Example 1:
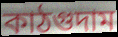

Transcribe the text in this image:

কাঠগুদাম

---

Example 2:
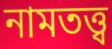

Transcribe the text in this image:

নামতত্ত্ব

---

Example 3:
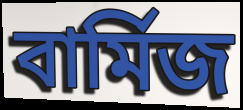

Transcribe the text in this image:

বার্মিজ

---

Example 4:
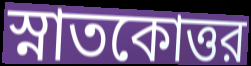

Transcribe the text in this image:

স্নাতকোত্তর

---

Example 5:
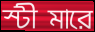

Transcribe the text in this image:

স্টীমারে